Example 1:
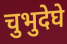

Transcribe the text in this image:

चुभुदेघे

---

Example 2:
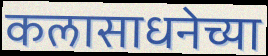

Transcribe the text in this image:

कलासाधनेच्या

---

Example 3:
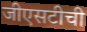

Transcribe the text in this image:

जीएसटीची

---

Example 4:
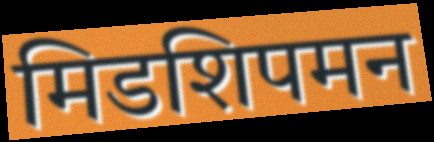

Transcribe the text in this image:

मिडशिपमन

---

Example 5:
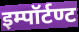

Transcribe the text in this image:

इम्पॉर्टण्ट